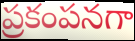
ప్రకంపనగా